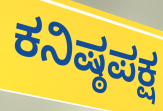
ಕನಿಷ್ಠಪಕ್ಷ